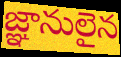
జ్ఞానులైన